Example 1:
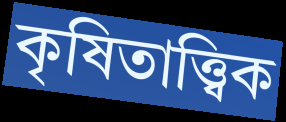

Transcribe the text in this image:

কৃষিতাত্ত্বিক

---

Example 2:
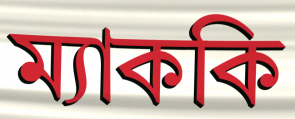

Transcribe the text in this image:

ম্যাককি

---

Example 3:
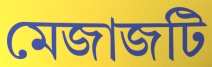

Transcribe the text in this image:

মেজাজটি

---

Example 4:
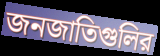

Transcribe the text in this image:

জনজাতিগুলির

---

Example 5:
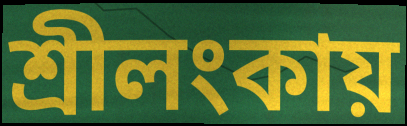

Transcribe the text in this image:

শ্রীলংকায়